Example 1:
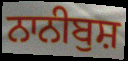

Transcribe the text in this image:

ਨਾਨੀਬੁਸ਼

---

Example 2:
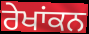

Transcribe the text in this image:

ਰੇਖਾਂਕਨ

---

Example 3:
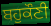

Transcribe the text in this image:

ਬਹੁਕੌਣੀ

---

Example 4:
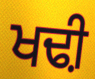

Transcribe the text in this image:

ਖਢ਼ੀ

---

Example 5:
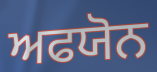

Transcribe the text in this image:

ਅਫਯੋਨ